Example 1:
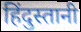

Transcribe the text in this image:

हिंदुस्तानी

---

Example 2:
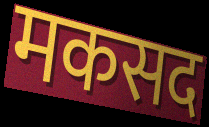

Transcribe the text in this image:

मकसद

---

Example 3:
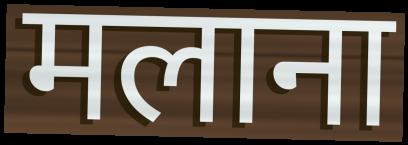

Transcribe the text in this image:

मलाना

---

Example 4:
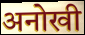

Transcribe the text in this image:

अनोखी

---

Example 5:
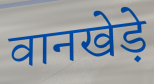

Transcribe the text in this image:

वानखेड़े